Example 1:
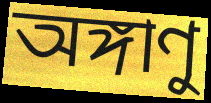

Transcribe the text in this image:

অঙ্গাণু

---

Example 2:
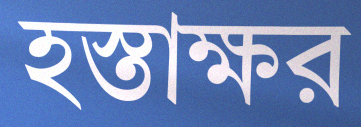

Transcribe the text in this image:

হস্তাক্ষর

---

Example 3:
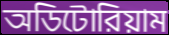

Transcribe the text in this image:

অডিটোরিয়াম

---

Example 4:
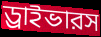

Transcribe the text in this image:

ড্রাইভারস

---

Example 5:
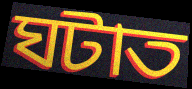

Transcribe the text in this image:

ঘটাত